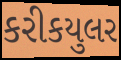
કરીકયુલર